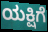
ಯಕ್ಷಿಗೆ